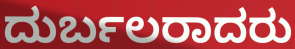
ದುರ್ಬಲರಾದರು